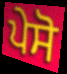
ਪੇਸੋ